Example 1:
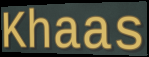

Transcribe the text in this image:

Khaas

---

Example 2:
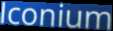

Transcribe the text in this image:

Iconium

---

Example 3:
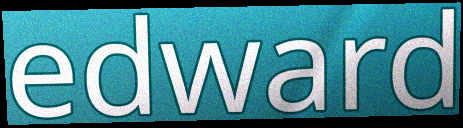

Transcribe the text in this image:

edward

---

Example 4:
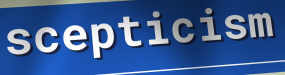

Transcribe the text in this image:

scepticism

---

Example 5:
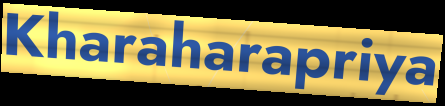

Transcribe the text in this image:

Kharaharapriya